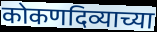
कोकणदिव्याच्या